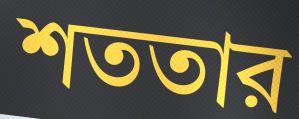
শততার